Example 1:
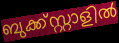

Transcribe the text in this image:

ബുക്ക്സ്റ്റാളിൽ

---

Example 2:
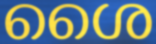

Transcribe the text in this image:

ശൈ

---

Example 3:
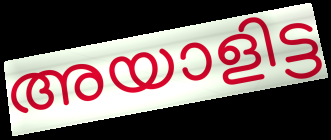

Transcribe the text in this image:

അയാളിട്ട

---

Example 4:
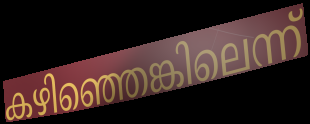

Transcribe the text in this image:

കഴിഞ്ഞെങ്കിലെന്ന്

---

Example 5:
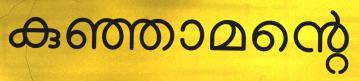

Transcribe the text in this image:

കുഞ്ഞാമന്റെ